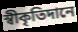
স্বীকৃতিদানে